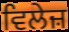
ਵਿਲੇਜ਼